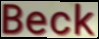
Beck